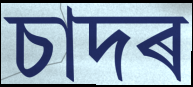
চাদৰ